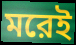
মরেই